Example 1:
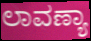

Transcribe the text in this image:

ಲಾವಣ್ಯಾ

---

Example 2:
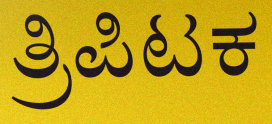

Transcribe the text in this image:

ತ್ರಿಪಿಟಕ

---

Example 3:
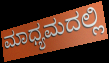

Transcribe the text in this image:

ಮಾಧ್ಯಮದಲ್ಲಿ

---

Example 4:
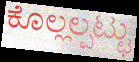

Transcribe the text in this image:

ಕೊಲ್ಲಲ್ಪಟ್ಟು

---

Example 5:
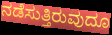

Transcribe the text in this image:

ನಡೆಸುತ್ತಿರುವುದೂ